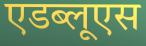
एडब्लूएस